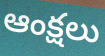
ఆంక్షలు